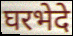
घरभेदे